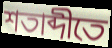
শতাব্দীতে